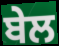
ਬੇਲ